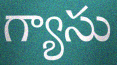
గ్యాసు